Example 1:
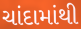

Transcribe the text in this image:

ચાંદામાંથી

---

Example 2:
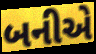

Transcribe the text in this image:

બનીએ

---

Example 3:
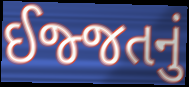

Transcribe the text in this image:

ઈજ્જતનું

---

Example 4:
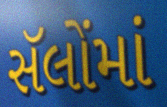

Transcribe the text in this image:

સૅલોંમાં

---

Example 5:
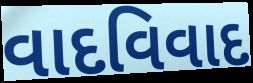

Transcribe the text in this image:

વાદવિવાદ